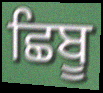
ਛਿਬੂ